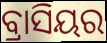
ବ୍ରାସିୟର